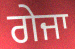
ਗੇਜਾ